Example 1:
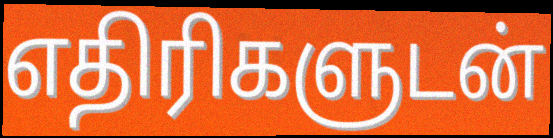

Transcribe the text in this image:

எதிரிகளுடன்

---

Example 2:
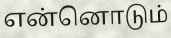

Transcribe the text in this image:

என்னொடும்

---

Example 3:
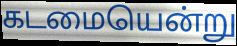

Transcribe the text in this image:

கடமையென்று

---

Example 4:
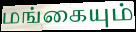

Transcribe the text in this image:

மங்கையும்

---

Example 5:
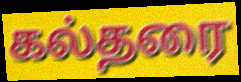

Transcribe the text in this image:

கல்தரை